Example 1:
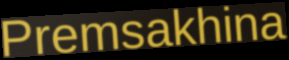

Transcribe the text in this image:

Premsakhina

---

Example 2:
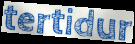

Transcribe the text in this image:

tertidur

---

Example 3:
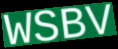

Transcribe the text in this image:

WSBV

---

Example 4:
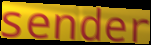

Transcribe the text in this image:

sender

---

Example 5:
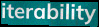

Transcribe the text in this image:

iterability